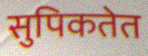
सुपिकतेत